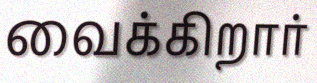
வைக்கிறார்